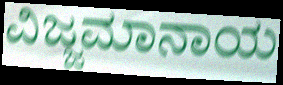
ವಿಜ್ಜಮಾನಾಯ